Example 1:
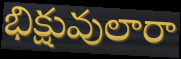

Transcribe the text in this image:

భిక్షువులారా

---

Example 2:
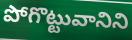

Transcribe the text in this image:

పోగొట్టువానిని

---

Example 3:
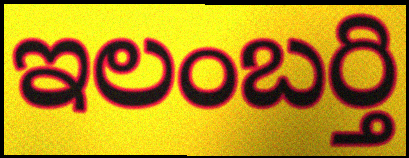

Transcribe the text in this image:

ఇలంబర్తి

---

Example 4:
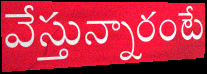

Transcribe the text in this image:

వేస్తున్నారంటే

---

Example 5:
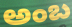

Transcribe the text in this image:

అంబ